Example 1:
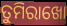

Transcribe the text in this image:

ତୁମିରାଖୋ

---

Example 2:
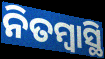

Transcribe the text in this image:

ନିତମ୍ବାସ୍ଥି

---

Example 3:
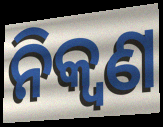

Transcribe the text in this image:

ନିକ୍ୱଣ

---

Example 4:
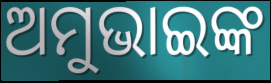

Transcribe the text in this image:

ଅମୁଭାଇଙ୍କ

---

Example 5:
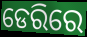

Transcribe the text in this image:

ଡେରିରେ